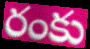
రంకు